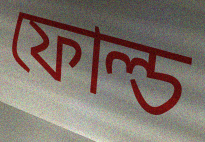
ফোল্ড